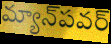
మ్యాన్‌పవర్